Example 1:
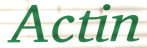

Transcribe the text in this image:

Actin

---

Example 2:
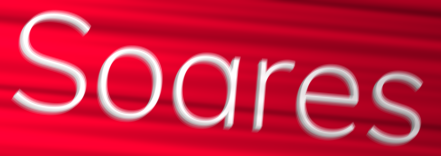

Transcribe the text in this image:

Soares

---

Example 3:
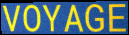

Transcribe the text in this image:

VOYAGE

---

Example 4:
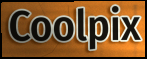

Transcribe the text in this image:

Coolpix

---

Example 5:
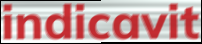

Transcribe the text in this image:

indicavit